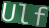
Ulf